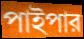
পাইপার